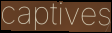
captives